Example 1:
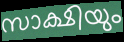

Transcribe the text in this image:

സാക്ഷിയും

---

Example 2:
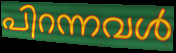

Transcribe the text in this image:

പിറന്നവൾ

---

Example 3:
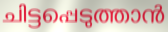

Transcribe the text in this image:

ചിട്ടപ്പെടുത്താൻ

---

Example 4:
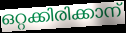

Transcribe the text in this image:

ഒറ്റക്കിരിക്കാന്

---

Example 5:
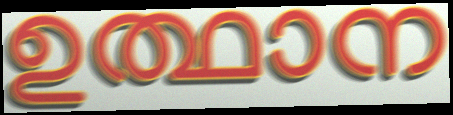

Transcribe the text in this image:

ഉത്ഥാന